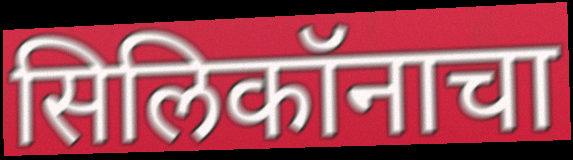
सिलिकॉनाचा